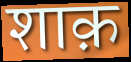
शाक़